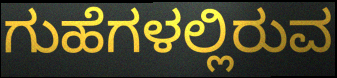
ಗುಹೆಗಳಲ್ಲಿರುವ